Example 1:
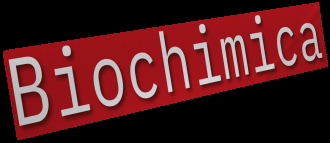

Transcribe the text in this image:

Biochimica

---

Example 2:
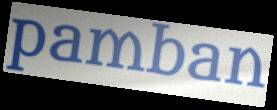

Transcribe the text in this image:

pamban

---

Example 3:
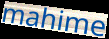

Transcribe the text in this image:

mahime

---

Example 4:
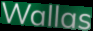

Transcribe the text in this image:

Wallas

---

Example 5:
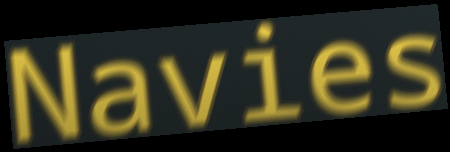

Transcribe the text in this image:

Navies